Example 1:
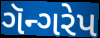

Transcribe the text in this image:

ગૅન્ગરેપ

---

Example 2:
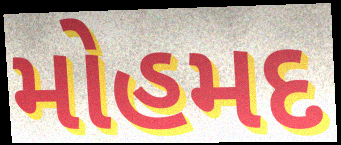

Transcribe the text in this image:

મોહમદ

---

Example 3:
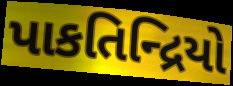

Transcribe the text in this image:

પાકતિન્દ્રિયો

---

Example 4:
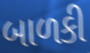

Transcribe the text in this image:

બાળકી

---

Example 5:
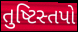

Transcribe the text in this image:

તુષ્ટિસ્તપો